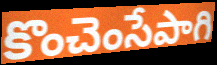
కొంచెంసేపాగి